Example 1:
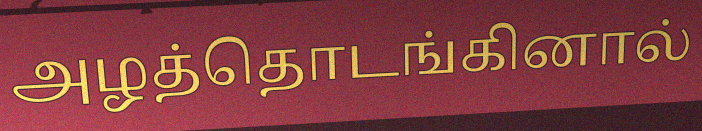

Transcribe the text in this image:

அழத்தொடங்கினால்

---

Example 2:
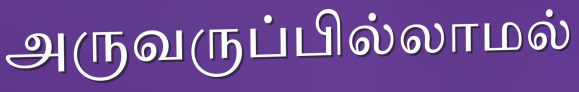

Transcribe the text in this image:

அருவருப்பில்லாமல்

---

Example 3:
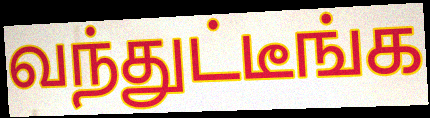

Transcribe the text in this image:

வந்துட்டீங்க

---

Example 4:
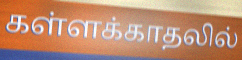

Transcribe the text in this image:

கள்ளக்காதலில்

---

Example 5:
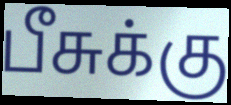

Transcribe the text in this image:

பீசுக்கு